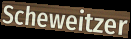
Scheweitzer